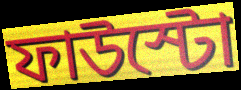
ফাউস্টো